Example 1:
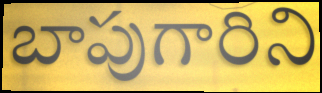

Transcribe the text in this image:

బాపుగారిని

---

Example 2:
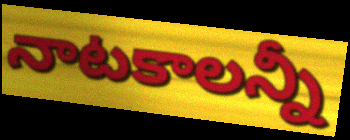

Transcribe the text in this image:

నాటకాలన్నీ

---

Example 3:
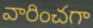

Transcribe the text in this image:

వారించగా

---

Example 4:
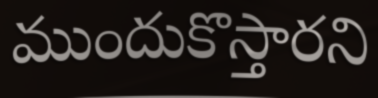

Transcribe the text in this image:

ముందుకొస్తారని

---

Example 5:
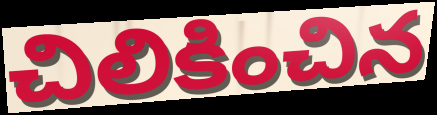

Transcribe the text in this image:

చిలికించిన